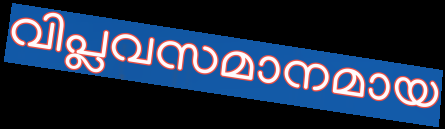
വിപ്ലവസമാനമായ